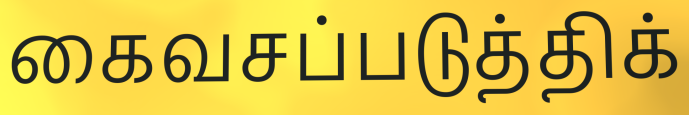
கைவசப்படுத்திக்